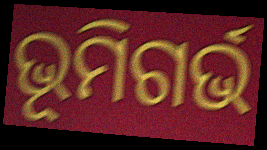
ଭୂମିଗର୍ଭ